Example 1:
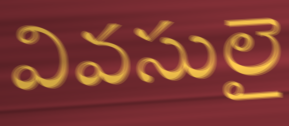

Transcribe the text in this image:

వివసులై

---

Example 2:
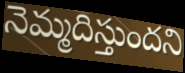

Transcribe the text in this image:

నెమ్మదిస్తుందని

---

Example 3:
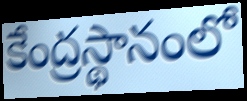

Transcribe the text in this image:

కేంద్రస్థానంలో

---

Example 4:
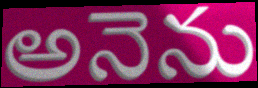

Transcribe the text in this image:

అనెను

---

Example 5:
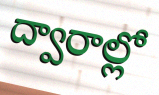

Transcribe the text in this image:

ద్వారాల్లో